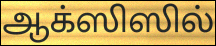
ஆக்ஸிஸில்